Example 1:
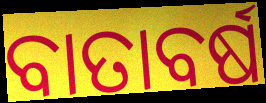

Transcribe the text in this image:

ବାତାବର୍ଷ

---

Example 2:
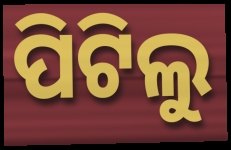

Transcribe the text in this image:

ପିଟିଲୁ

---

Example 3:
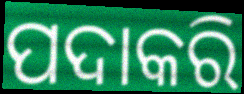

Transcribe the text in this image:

ପଦାକରି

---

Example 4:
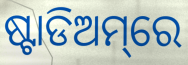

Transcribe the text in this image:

ଷ୍ଟାଡିଅମ୍‌ରେ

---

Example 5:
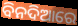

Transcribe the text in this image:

ବିନଦିଆରେ